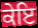
ਕੇਇ